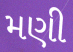
મણી